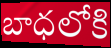
బాధలోకి